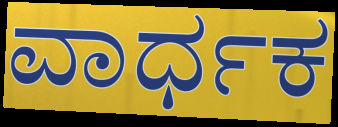
ವಾರ್ಧಕ